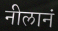
नीलानं